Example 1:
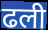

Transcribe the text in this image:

ढली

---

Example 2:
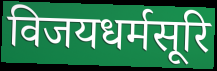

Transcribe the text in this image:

विजयधर्मसूरि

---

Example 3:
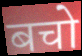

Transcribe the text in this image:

बचो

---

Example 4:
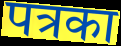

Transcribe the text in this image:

पत्रका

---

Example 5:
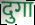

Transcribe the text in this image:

दुगा